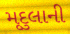
મૃદુલાની